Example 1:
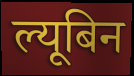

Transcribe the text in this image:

ल्यूबिन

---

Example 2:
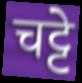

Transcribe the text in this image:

चट्टे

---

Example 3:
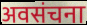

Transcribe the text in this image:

अवसंचना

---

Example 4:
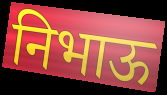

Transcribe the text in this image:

निभाऊ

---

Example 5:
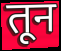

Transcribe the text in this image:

तून